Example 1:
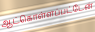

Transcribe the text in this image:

ஆட்கொள்ளப்பட்டேன்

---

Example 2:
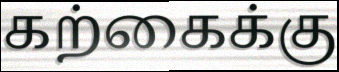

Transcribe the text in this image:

கற்கைக்கு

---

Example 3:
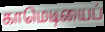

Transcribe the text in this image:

காமெடியைப்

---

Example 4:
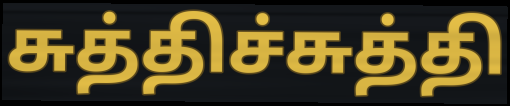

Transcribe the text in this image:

சுத்திச்சுத்தி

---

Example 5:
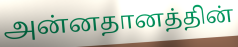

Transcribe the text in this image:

அன்னதானத்தின்